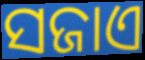
ସଜାଏ